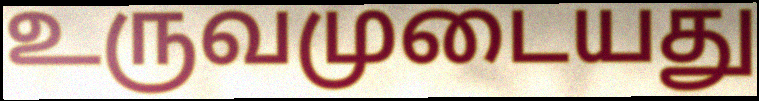
உருவமுடையது